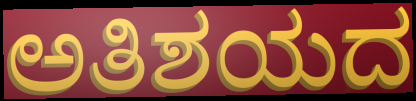
ಅತಿಶಯದ